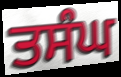
ਤਸੰਘ